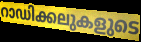
റാഡിക്കലുകളുടെ